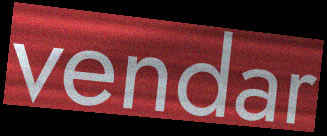
vendar